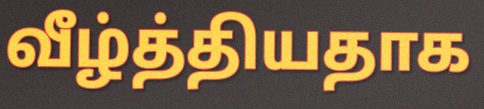
வீழ்த்தியதாக